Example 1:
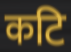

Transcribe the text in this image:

कटि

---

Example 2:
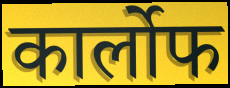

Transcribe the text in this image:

कार्लोफ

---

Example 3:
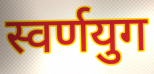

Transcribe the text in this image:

स्वर्णयुग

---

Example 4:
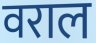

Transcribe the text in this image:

वराल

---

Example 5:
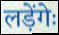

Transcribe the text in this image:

लड़ेंगेः